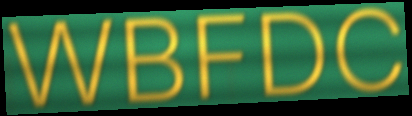
WBFDC